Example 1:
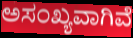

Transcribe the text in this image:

ಅಸಂಖ್ಯವಾಗಿವೆ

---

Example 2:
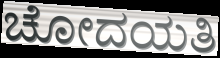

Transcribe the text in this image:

ಚೋದಯತಿ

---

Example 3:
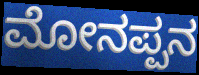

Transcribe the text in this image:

ಮೋನಪ್ಪನ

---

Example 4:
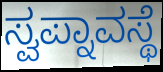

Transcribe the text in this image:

ಸ್ವಪ್ನಾವಸ್ಥೆ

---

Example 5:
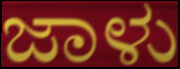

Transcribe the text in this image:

ಜಾಳು